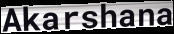
Akarshana